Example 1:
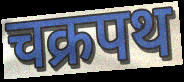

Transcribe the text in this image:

चक्रपथ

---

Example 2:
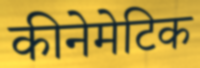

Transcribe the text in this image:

कीनेमेटिक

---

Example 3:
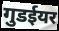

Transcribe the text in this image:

गुडईयर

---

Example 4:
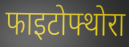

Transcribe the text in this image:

फाइटोफ्थोरा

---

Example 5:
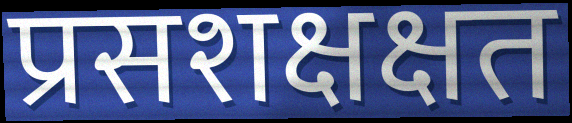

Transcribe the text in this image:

प्रसशक्षक्षत